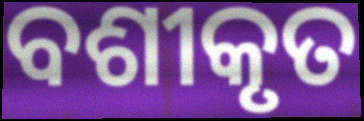
ବଶୀକୃତ